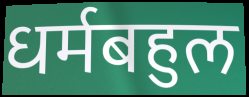
धर्मबहुल